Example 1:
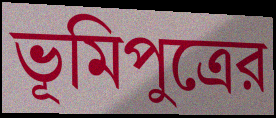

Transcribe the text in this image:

ভূমিপুত্রের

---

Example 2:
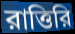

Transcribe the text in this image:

রাত্তিরি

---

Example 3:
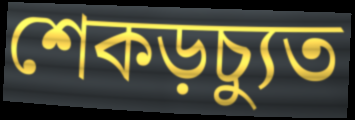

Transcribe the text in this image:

শেকড়চ্যুত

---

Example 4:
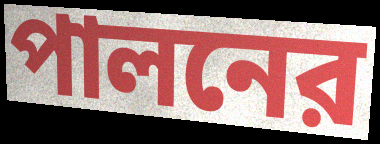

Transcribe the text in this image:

পালনের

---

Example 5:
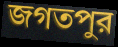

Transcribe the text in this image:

জগতপুর